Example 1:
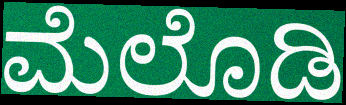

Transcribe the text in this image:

ಮೆಲೊಡಿ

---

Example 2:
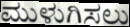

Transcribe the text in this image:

ಮುಳುಗಿಸಲು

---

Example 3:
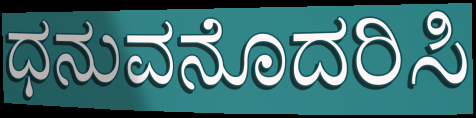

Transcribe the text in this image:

ಧನುವನೊದರಿಸಿ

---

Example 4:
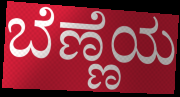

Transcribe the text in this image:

ಬೆಣ್ಣೆಯ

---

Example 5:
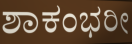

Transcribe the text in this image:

ಶಾಕಂಭರೀ